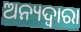
ଅନ୍ୟଦ୍ଵାରା